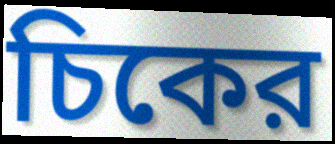
চিকের